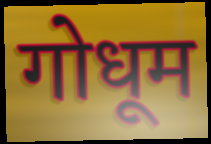
गोधूम